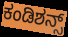
ಕಂಡಿಶನ್ಸ್